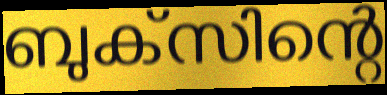
ബുക്‌സിന്റെ